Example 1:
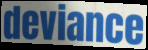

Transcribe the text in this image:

deviance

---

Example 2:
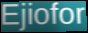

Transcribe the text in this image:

Ejiofor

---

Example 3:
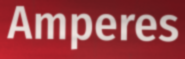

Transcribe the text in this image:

Amperes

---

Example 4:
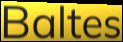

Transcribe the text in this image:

Baltes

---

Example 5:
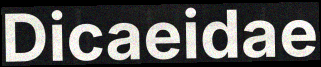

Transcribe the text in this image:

Dicaeidae